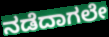
ನಡೆದಾಗಲೇ